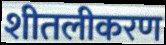
शीतलीकरण